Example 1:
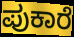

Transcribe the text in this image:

ಪುಕಾರೆ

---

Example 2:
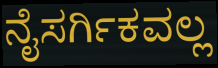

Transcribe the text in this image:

ನೈಸರ್ಗಿಕವಲ್ಲ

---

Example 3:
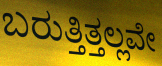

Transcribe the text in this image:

ಬರುತ್ತಿತ್ತಲ್ಲವೇ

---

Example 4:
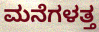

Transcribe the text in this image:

ಮನೆಗಳತ್ತ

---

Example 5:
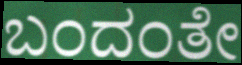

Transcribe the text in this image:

ಬಂದಂತೇ